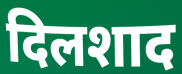
दिलशाद